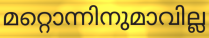
മറ്റൊന്നിനുമാവില്ല